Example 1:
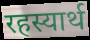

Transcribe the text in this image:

रहस्यार्थ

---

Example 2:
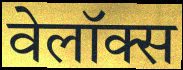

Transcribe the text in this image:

वेलॉक्स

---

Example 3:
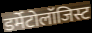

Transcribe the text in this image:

डर्मेटोलॉजिस्ट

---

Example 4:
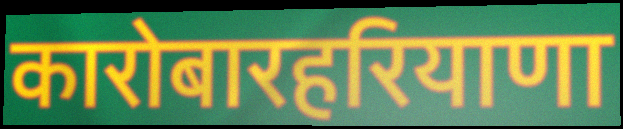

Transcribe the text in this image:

कारोबारहरियाणा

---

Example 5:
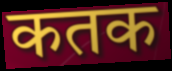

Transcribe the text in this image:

कतक